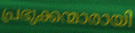
പ്രഭുക്കന്മാരായി